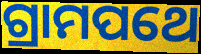
ଗ୍ରାମପଥେ